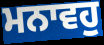
ਮਨਾਵਹੁ